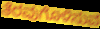
ತೆರವುಗೊಳಿಸುವ